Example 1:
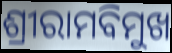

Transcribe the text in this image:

ଶ୍ରୀରାମବିମୁଖ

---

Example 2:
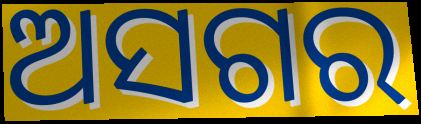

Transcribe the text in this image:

ଅସଗର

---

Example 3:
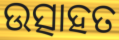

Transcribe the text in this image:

ଉତ୍ସାହତ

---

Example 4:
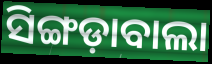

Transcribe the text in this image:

ସିଙ୍ଗଡ଼ାବାଲା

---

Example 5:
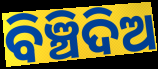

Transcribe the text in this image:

ବିଞ୍ଚିଦିଅ